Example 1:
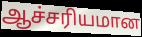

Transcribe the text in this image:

ஆச்சரியமான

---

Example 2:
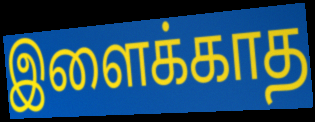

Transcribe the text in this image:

இளைக்காத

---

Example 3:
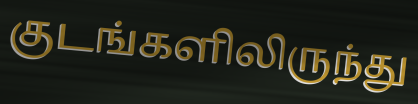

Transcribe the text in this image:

குடங்களிலிருந்து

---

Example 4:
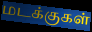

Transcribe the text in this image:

மடக்குகள்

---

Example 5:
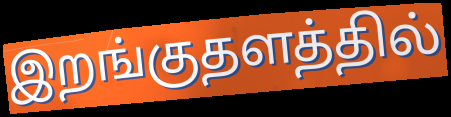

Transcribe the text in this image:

இறங்குதளத்தில்